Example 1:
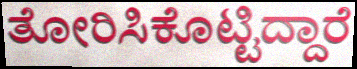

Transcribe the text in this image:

ತೋರಿಸಿಕೊಟ್ಟಿದ್ದಾರೆ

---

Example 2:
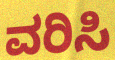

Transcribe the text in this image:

ವರಿಸಿ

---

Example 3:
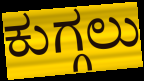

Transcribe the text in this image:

ಕುಗ್ಗಲು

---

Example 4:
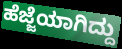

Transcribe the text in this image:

ಹೆಜ್ಜೆಯಾಗಿದ್ದು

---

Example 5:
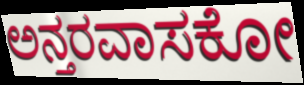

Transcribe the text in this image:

ಅನ್ತರವಾಸಕೋ